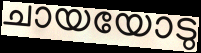
ചായയോടു